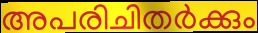
അപരിചിതർക്കും